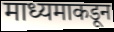
माध्यमाकडून